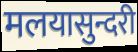
मलयासुन्दरी